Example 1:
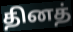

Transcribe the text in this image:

தினத்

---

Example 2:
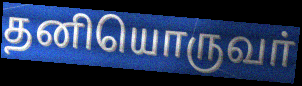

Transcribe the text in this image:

தனியொருவர்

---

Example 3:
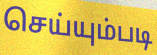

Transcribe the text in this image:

செய்யும்படி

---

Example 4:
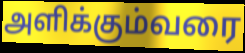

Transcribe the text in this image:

அளிக்கும்வரை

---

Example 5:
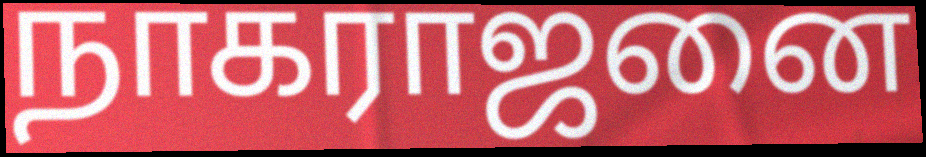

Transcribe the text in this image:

நாகராஜனை